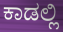
ಕಾಡಲ್ಲಿ